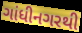
ગાંધીનગરથી